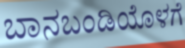
ಬಾನಬಂಡಿಯೊಳಗೆ